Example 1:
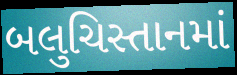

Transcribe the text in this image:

બલુચિસ્તાનમાં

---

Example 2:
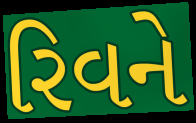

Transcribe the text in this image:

રિવને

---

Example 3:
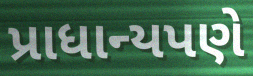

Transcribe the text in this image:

પ્રાધાન્યપણે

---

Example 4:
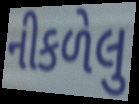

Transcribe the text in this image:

નીકળેલુ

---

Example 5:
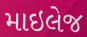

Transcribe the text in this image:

માઇલેજ